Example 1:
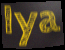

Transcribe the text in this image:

Iya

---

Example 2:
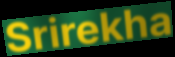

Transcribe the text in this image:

Srirekha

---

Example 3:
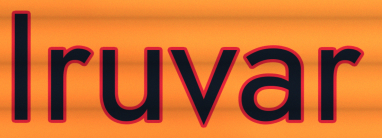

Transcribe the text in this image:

Iruvar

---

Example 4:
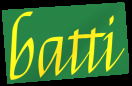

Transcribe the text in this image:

batti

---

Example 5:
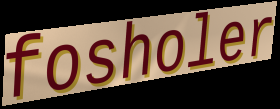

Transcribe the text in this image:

fosholer